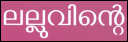
ലല്ലുവിന്റെ